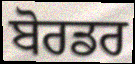
ਬੋਰਡਰ